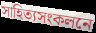
সাহিত্যসংকলনে